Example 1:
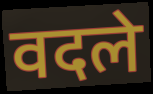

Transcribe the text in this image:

वदले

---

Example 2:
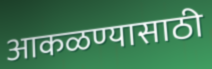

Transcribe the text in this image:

आकळण्यासाठी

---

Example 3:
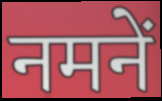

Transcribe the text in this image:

नमनें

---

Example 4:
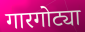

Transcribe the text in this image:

गारगोट्या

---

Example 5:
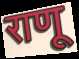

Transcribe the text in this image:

राणू